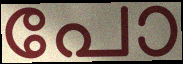
പോ